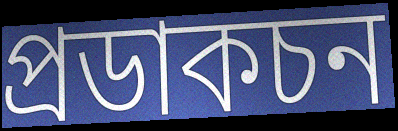
প্ৰডাকচন